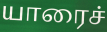
யாரைச்